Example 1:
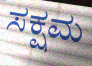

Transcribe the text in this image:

ಸಕ್ಷಮ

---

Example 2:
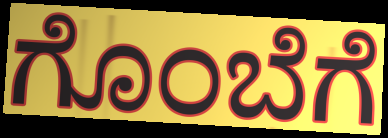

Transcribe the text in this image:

ಗೊಂಬೆಗೆ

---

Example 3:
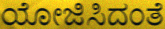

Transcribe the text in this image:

ಯೋಜಿಸಿದಂತೆ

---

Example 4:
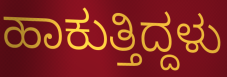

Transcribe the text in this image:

ಹಾಕುತ್ತಿದ್ದಳು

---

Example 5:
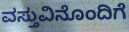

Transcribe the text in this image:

ವಸ್ತುವಿನೊಂದಿಗೆ